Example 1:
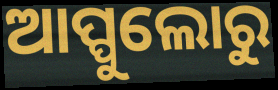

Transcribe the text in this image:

ଆପ୍ପୁଲୋରୁ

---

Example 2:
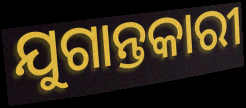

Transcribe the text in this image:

ଯୁଗାନ୍ତକାରୀ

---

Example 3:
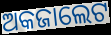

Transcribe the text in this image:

ଅକଜାଲେଟ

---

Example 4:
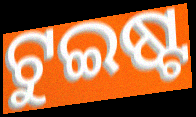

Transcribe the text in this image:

ଟୁଇଷ୍ଟ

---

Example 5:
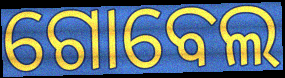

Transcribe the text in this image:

ଗୋବେଲ